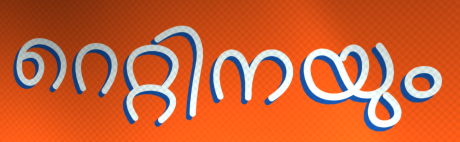
റെറ്റിനയും